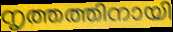
നൃത്തത്തിനായി